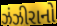
ઝંઝીરાનો